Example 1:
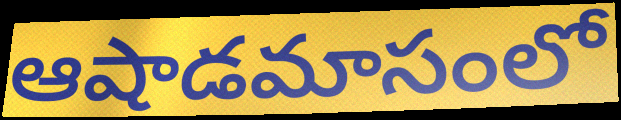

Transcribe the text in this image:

ఆషాడమాసంలో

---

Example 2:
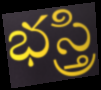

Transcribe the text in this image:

భస్త్రి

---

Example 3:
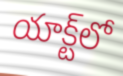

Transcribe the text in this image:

యాక్ట్‌లో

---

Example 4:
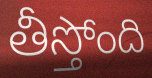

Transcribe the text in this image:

తీస్తోంది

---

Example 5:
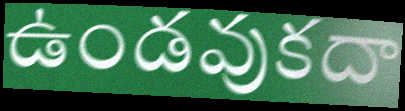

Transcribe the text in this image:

ఉండవుకదా